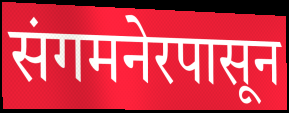
संगमनेरपासून